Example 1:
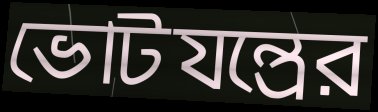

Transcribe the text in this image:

ভোটযন্ত্রের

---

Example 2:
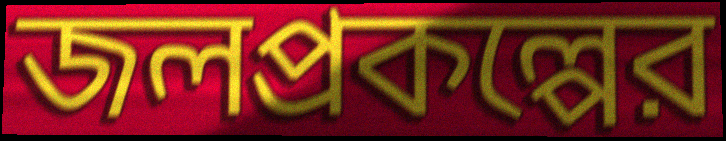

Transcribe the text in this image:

জলপ্রকল্পের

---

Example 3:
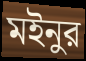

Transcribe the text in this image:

মইনুর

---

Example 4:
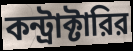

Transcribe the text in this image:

কন্ট্রাক্টারির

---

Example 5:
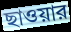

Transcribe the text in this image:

ছাওয়ার